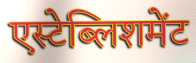
एस्टेब्लिशमेंट